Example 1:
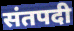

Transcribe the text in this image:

संतपदी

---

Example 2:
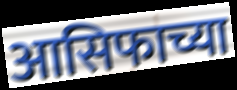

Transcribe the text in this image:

आसिफाच्या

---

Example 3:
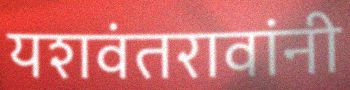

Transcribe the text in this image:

यशवंतरावांनी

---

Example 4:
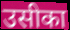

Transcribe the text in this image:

उसीका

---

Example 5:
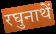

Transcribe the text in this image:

रघुनाथें